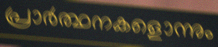
പ്രാർത്ഥനകളൊന്നും